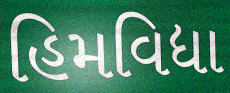
હિમવિદ્યા